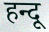
हन्दू